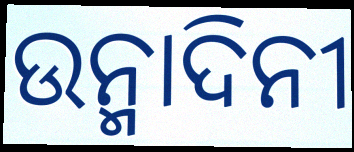
ଉନ୍ମାଦିନୀ